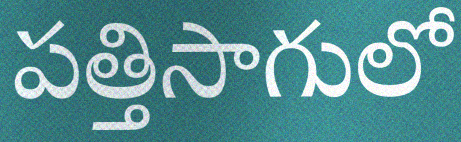
పత్తిసాగులో